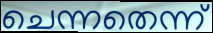
ചെന്നതെന്ന്